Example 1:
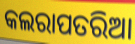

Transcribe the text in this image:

କଲରାପତରିଆ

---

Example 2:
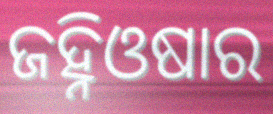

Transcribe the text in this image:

ଜହ୍ନିଓଷାର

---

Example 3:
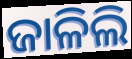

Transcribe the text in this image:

ଜାଳିଲି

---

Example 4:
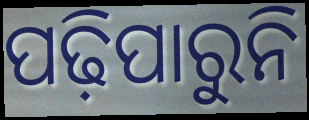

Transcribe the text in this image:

ପଢ଼ିପାରୁନି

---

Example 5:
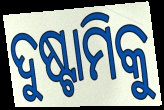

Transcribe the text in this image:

ଦୁଷ୍ଟାମିକୁ